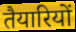
तैयारियों